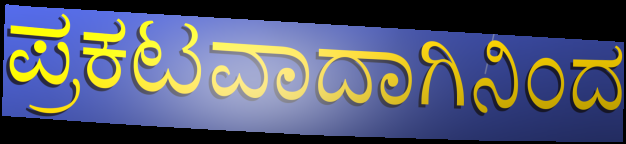
ಪ್ರಕಟವಾದಾಗಿನಿಂದ